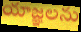
యాజ్ఞలను